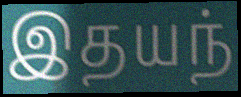
இதயந்